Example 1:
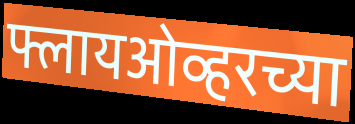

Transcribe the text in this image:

फ्लायओव्हरच्या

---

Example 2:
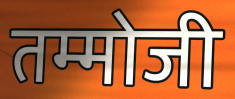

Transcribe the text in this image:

तम्मोजी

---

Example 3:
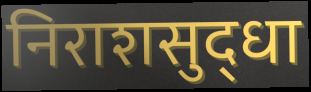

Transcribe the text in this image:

निराशसुद्धा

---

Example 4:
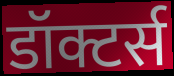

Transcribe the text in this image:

डॉक्टर्स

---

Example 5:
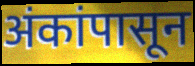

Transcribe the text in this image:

अंकांपासून